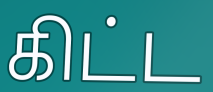
கிட்ட